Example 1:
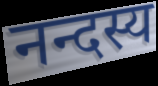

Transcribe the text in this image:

नन्दस्य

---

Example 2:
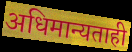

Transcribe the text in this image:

अधिमान्यताही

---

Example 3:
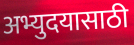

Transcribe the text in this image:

अभ्युदयासाठी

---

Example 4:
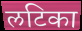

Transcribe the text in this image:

लटिका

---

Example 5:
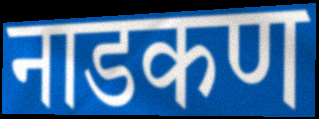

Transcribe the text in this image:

नाडकण